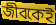
জীবকেই